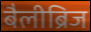
बैलीब्रिज